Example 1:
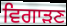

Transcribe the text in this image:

ਵਿਗਾੜਣ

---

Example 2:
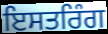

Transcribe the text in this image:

ਇਸਤਰਿੰਗ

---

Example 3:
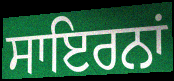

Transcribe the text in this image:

ਸਾਇਰਨਾਂ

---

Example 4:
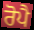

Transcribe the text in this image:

ਰੋਪੈ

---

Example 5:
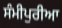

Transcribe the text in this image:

ਸੰਮੀਪੁਰੀਆ